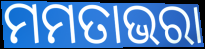
ମମତାଭରା